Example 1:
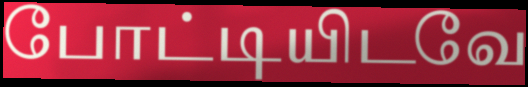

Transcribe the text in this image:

போட்டியிடவே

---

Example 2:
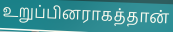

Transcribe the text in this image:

உறுப்பினராகத்தான்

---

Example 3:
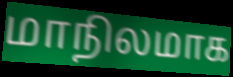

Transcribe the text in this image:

மாநிலமாக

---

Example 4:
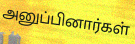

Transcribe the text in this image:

அனுப்பினார்கள்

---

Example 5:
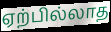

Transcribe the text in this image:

ஏற்பில்லாத